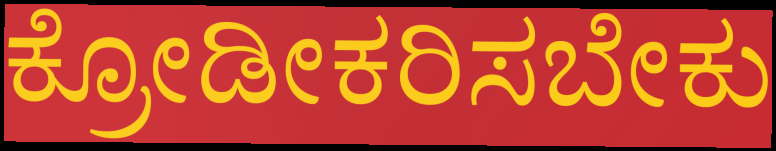
ಕ್ರೋಡೀಕರಿಸಬೇಕು